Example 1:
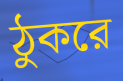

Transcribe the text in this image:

ঠুকরে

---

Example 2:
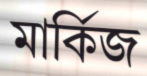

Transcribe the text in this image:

মার্কিজ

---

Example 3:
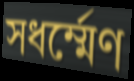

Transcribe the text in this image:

সধর্ম্মেণ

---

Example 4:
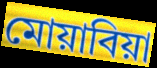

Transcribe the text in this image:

মোয়াবিয়া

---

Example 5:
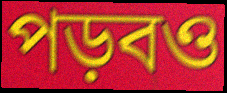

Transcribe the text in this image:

পড়বও